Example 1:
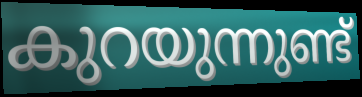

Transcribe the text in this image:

കുറയുന്നുണ്ട്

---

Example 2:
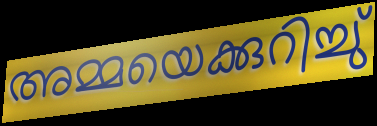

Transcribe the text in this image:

അമ്മയെക്കുറിച്ചു്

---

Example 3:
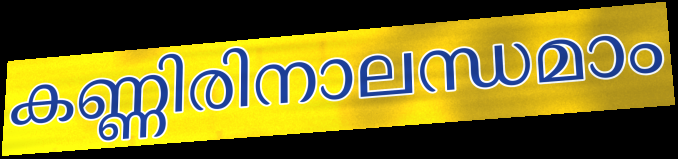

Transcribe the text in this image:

കണ്ണിരിനാലന്ധമാം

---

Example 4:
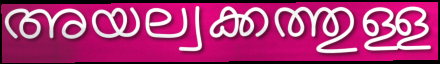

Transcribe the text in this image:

അയല്വക്കത്തുള്ള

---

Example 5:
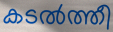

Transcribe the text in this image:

കടൽത്തീ